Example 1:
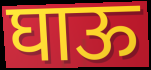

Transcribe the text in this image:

घाऊ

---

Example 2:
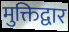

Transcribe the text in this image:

मुक्तिद्वार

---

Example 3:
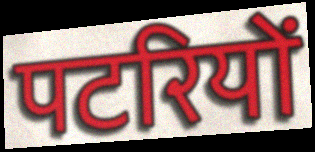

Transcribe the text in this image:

पटरियों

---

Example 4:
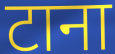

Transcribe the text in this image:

टाना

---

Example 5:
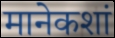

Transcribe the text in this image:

मानेकशां